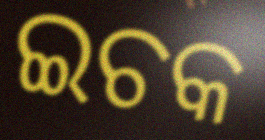
ଇଚକ